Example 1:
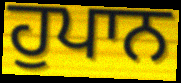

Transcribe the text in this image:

ਹੁਪਾਨ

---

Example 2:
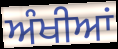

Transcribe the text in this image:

ਅੰਖੀਆਂ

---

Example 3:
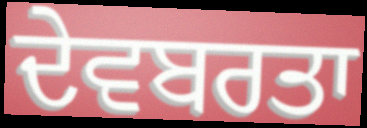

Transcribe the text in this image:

ਦੇਵਬਰਤਾ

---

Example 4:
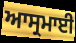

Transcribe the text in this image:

ਆਸ੍ਰਮਾਈ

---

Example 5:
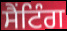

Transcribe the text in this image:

ਸੈਂਟਿੰਗ